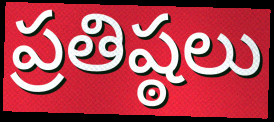
ప్రతిష్ఠలు